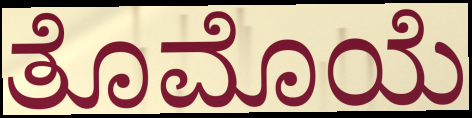
ತೊಮೊಯೆ